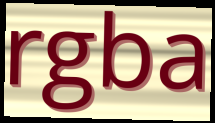
rgba